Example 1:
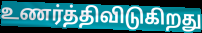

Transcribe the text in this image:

உணர்த்திவிடுகிறது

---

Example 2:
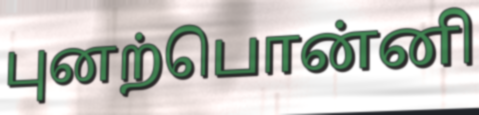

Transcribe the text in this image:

புனற்பொன்னி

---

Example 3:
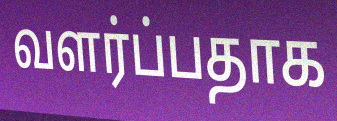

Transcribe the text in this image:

வளர்ப்பதாக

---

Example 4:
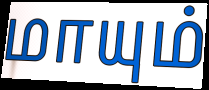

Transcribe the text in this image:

மாயும்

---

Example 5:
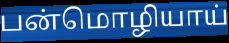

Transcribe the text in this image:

பன்மொழியாய்